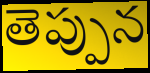
తెప్పున